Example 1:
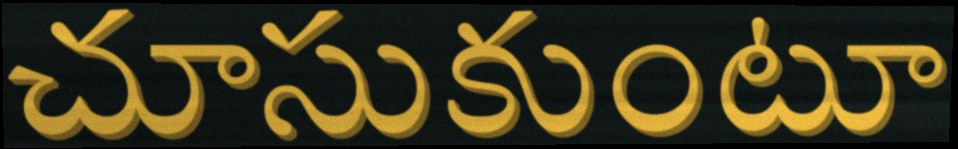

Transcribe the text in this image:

చూసుకుంటూ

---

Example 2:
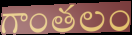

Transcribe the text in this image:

గాంతలం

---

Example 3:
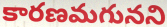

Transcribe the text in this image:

కారణమగునని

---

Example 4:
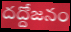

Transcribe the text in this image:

దద్దోజనం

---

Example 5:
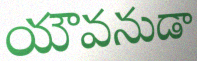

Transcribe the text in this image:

యౌవనుడా